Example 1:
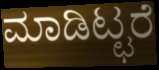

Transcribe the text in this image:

ಮಾಡಿಟ್ಟರೆ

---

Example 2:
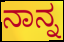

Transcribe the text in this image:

ನಾನ್ನ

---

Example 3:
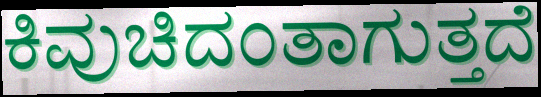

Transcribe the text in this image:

ಕಿವುಚಿದಂತಾಗುತ್ತದೆ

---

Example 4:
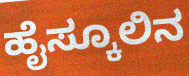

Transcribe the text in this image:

ಹೈಸ್ಕೂಲಿನ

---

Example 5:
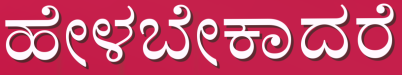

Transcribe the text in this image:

ಹೇಳಬೇಕಾದರೆ